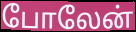
போலேன்